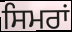
ਸਿਮਰਾਂ